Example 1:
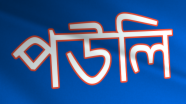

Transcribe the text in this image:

পউলি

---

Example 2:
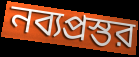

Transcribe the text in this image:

নব্যপ্রস্তর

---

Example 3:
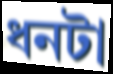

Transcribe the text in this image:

ধনটা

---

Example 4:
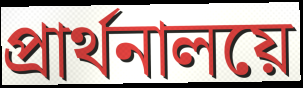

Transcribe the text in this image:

প্রার্থনালয়ে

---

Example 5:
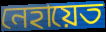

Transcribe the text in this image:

নেহায়েত